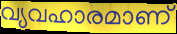
വ്യവഹാരമാണ്